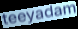
teeyadam